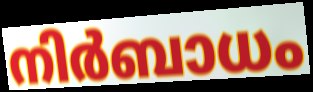
നിർബാധം